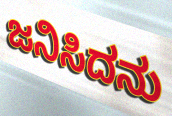
ಜನಿಸಿದನು